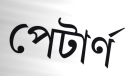
পেটাৰ্ণ